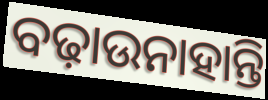
ବଢ଼ାଉନାହାନ୍ତି